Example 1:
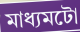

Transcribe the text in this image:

মাধ্যমটো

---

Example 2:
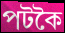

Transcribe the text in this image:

পটকৈ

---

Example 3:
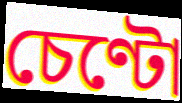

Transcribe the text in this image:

চেণ্টো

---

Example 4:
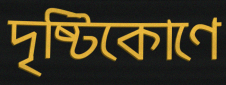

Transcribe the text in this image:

দৃষ্টিকোণে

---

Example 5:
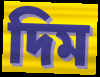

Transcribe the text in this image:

দিম